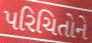
પરિચિતોને